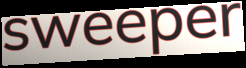
sweeper